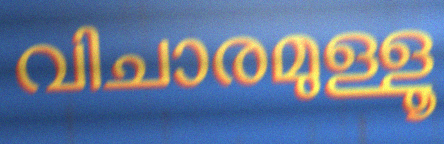
വിചാരമുള്ളൂ